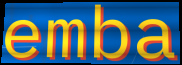
emba